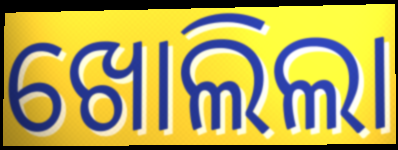
ଖୋଲିଲା